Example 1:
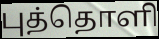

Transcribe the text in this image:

புத்தொளி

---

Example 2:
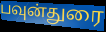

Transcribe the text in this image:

பவுன்துரை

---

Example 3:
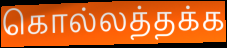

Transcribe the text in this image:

கொல்லத்தக்க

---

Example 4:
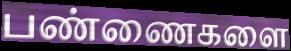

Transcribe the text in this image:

பண்ணைகளை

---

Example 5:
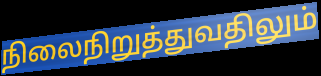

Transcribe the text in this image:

நிலைநிறுத்துவதிலும்